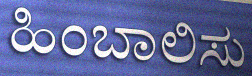
ಹಿಂಬಾಲಿಸು